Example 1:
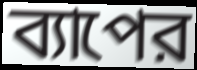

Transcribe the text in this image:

ব্যাপের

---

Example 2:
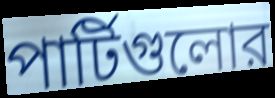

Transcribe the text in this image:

পার্টিগুলোর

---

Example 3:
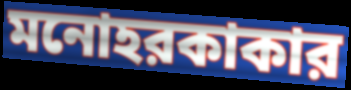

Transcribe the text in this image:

মনোহরকাকার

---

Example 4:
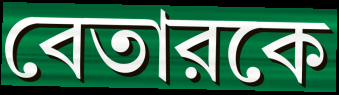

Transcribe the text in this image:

বেতারকে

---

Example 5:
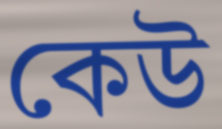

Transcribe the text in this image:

কেউ